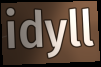
idyll